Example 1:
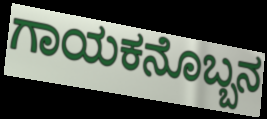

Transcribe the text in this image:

ಗಾಯಕನೊಬ್ಬನ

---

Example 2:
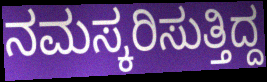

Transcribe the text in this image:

ನಮಸ್ಕರಿಸುತ್ತಿದ್ದ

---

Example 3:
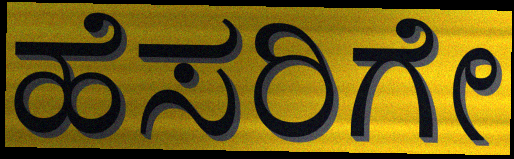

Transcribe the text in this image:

ಹೆಸರಿಗೇ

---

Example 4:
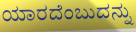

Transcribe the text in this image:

ಯಾರದೆಂಬುದನ್ನು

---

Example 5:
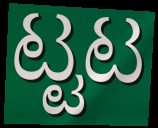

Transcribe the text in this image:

ಟ್ಟಟ